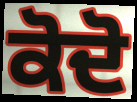
ਕੋਦੋ